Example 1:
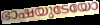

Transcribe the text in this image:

ഭാഷയുടേയോ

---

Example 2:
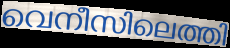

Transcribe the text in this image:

വെനീസിലെത്തി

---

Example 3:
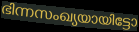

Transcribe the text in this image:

ഭിന്നസംഖ്യയായിട്ടോ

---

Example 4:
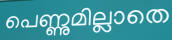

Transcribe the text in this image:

പെണ്ണുമില്ലാതെ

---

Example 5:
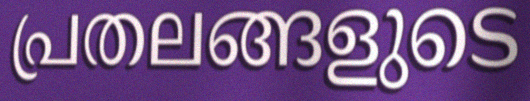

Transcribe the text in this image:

പ്രതലങ്ങളുടെ